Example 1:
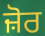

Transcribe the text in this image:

ਜ਼ੋਰ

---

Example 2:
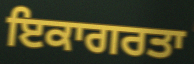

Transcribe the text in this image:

ਇਕਾਗਰਤਾ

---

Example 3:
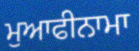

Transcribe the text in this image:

ਮੁਆਫੀਨਾਮਾ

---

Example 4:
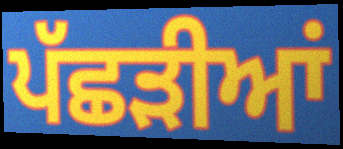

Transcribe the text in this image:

ਪੱਛੜੀਆਂ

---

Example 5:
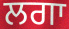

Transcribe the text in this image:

ਲਗਾ